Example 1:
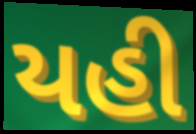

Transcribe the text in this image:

યહી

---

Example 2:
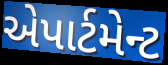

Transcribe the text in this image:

એપાર્ટમેન્ટ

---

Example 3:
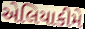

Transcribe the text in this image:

એલિયાકીમે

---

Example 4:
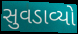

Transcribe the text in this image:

સુવડાવ્યો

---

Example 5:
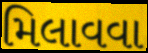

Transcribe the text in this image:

મિલાવવા